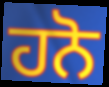
ਹਨੋ